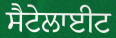
ਸੈਟੇਲਾਈਟ